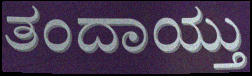
ತಂದಾಯ್ತು